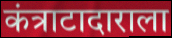
कंत्राटादाराला